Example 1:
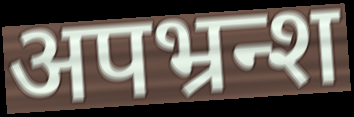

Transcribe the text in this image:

अपभ्रन्श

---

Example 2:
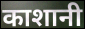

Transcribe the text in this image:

काशानी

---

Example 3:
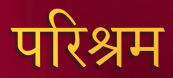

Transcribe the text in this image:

परिश्रम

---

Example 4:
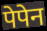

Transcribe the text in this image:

पेपेन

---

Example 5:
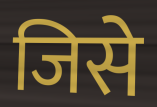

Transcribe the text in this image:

जिसे